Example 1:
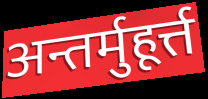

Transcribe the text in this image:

अन्तर्मुहूर्त्त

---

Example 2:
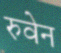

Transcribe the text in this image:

रुवेन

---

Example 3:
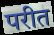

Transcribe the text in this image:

परीत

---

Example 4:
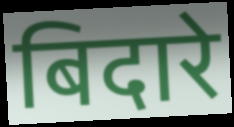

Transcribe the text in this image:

बिदारे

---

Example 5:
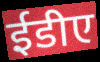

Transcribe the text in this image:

ईडीए